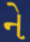
ને